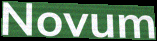
Novum